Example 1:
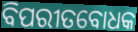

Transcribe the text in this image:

ବିପରୀତବୋଧକ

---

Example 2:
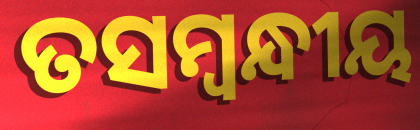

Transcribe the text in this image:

ତସମ୍ବନ୍ଧୀୟ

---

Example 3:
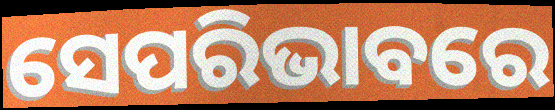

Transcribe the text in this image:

ସେପରିଭାବରେ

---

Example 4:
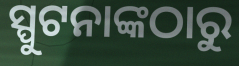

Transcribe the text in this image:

ସ୍ପୁଟନାଙ୍କଠାରୁ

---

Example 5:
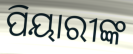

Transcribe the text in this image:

ପିୟାରୀଙ୍କ